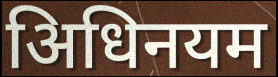
अिधिनयम